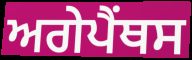
ਅਗੇਪੈਂਥਸ